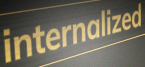
internalized